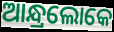
ଆନ୍ଧ୍ରଲୋକେ